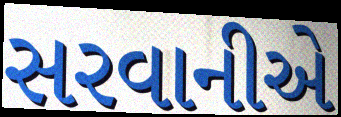
સરવાનીએ